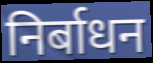
निर्बाधन